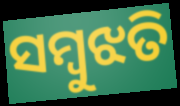
ସମ୍ବୁଝତି